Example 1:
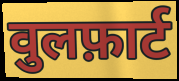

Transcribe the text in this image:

वुलफ़ार्ट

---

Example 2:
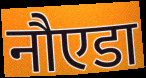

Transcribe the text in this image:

नौएडा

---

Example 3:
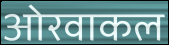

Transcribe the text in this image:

ओरवाकल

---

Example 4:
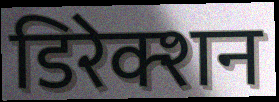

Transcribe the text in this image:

डिरेक्शन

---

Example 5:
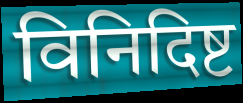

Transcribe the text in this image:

विनिदिष्ट